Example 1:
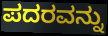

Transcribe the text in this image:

ಪದರವನ್ನು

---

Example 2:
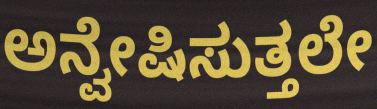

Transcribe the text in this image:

ಅನ್ವೇಷಿಸುತ್ತಲೇ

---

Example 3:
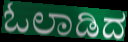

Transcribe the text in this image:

ಓಲಾಡಿದ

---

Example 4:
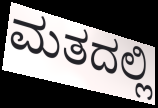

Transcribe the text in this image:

ಮತದಲ್ಲಿ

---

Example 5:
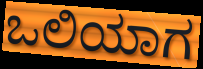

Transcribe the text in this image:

ಒಲಿಯಾಗ